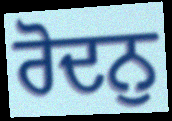
ਰੋਦਨੁ